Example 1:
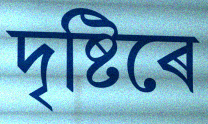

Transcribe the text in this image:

দৃষ্টিৰে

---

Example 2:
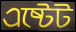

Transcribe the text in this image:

এষ্টেট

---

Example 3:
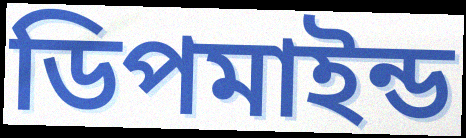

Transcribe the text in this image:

ডিপমাইন্ড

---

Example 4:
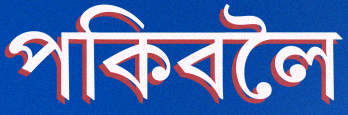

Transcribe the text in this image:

পকিবলৈ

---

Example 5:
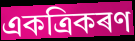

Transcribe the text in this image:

একত্ৰিকৰণ